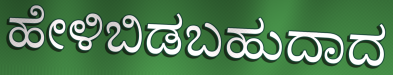
ಹೇಳಿಬಿಡಬಹುದಾದ